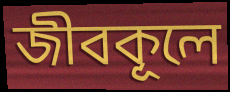
জীবকূলে